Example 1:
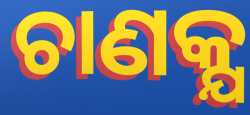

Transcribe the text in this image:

ଚାଣକ୍ଯ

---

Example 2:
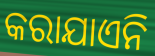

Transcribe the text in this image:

କରାଯାଏନି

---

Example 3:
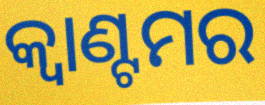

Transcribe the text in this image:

କ୍ୱାଣ୍ଟମର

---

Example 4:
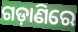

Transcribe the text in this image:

ଗଡ଼ାଣିରେ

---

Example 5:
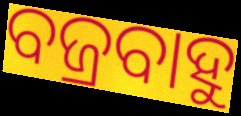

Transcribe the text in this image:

ବଜ୍ରବାହୁ